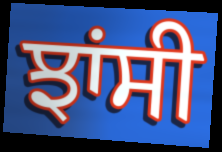
ਝਾਂਸੀ